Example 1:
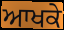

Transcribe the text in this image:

ਆਖਕੇ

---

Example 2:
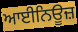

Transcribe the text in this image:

ਆਈਨਿਊਜ਼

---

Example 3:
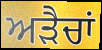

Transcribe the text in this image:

ਅੜੈਚਾਂ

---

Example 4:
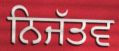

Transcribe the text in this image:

ਨਿਜੱਤਵ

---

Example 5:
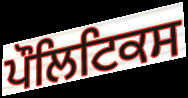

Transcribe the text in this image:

ਪੌਲਿਟਿਕਸ